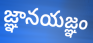
జ్ఞానయజ్ఞం